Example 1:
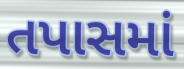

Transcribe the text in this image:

તપાસમાં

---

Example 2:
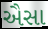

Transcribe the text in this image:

ઐસા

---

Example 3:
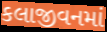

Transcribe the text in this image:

કલાજીવનમાં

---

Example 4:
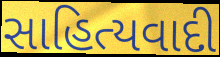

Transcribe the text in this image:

સાહિત્યવાદી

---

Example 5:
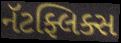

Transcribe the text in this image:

નૅટફ્લિક્સ